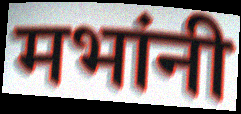
मभांनी